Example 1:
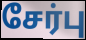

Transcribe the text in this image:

சேர்பு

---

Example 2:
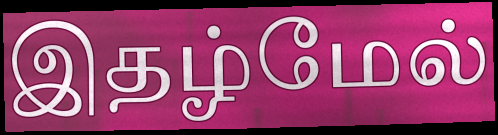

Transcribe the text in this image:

இதழ்மேல்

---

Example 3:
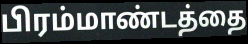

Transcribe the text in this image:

பிரம்மாண்டத்தை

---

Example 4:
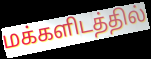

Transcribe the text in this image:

மக்களிடத்தில்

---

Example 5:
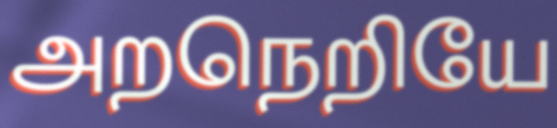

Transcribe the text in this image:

அறநெறியே